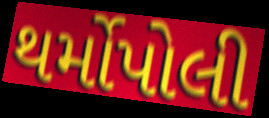
થર્મોપોલી